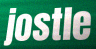
jostle